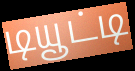
டியூட்டி